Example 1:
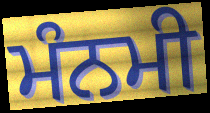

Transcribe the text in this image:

ਮੰਨਮੀ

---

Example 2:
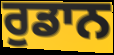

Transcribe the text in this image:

ਰੁਡਾਨ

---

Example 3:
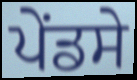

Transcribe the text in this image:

ਪੇਂਡਸੇ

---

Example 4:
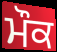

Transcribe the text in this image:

ਮੌਕ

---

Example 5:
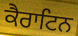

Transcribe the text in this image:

ਕੈਰਾਟਿਨ